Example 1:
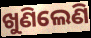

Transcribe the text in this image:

ଖୁଣିଲେଣି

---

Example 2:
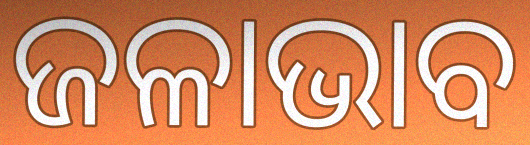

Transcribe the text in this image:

ଜଳାଭାବ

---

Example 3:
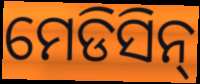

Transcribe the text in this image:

ମେଡିସିନ୍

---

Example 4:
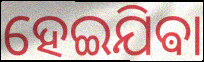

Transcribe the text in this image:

ହେଇଯିଵା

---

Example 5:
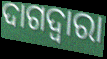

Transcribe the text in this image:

ଦାଗଦ୍ୱାରା